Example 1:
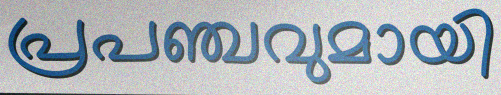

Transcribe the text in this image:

പ്രപഞ്ചവുമായി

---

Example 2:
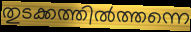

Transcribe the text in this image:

തുടക്കത്തിൽത്തന്നെ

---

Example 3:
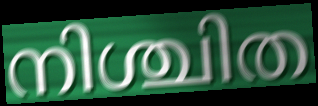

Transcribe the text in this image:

നിശ്ചിത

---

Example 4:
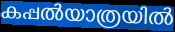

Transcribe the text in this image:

കപ്പൽയാത്രയിൽ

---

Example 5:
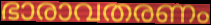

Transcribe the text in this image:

ഭാരാവതരണം